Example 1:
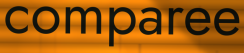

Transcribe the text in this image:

comparee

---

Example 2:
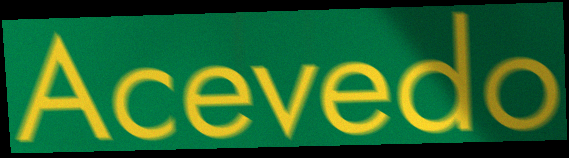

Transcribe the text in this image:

Acevedo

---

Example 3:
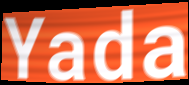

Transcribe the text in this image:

Yada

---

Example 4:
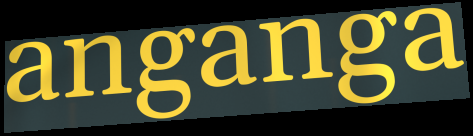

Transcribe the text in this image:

anganga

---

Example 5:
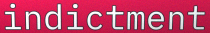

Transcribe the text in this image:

indictment